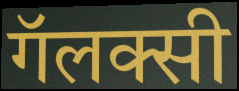
गॅलक्सी